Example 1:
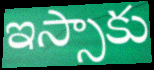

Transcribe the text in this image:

ఇస్సాకు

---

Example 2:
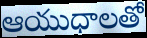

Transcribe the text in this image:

ఆయుధాలతో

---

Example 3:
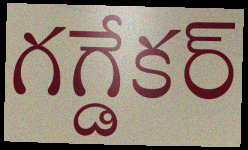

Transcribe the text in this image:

గగ్డేకర్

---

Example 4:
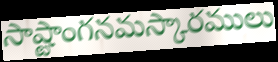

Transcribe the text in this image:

సాష్టాంగనమస్కారములు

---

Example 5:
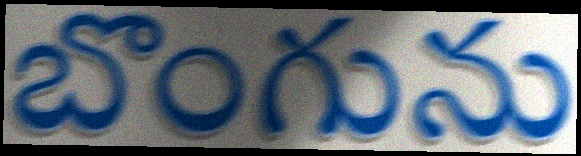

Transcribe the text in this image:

బొంగును